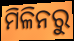
ମିଳିନରୁ